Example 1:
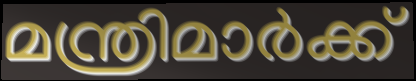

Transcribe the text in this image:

മന്ത്രിമാർക്ക്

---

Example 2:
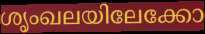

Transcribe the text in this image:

ശൃംഖലയിലേക്കോ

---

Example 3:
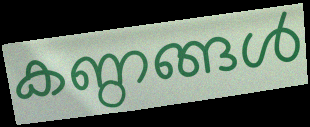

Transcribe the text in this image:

കണ്ഠങ്ങൾ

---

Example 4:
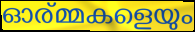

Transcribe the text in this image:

ഓര്മ്മകളെയും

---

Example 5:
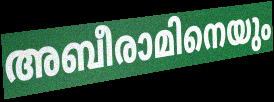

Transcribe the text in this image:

അബീരാമിനെയും